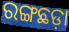
ରଙ୍ଗଛଡ଼ା